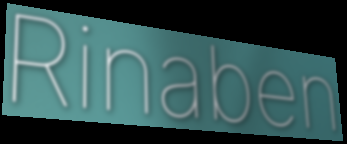
Rinaben